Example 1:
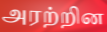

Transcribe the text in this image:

அரற்றின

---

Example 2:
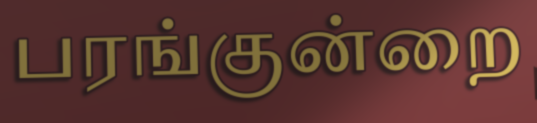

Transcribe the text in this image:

பரங்குன்றை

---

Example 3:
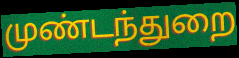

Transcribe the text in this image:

முண்டந்துறை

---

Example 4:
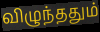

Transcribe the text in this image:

விழுந்ததும்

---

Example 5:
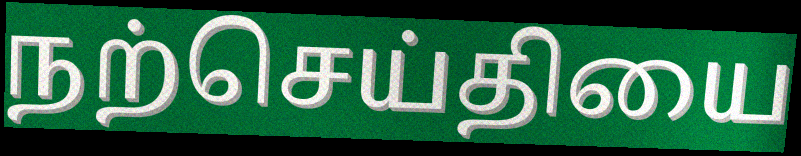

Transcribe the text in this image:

நற்செய்தியை